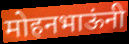
मोहनभाऊंनी